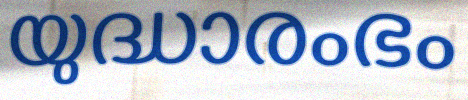
യുദ്ധാരംഭം